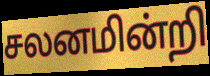
சலனமின்றி